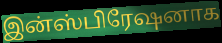
இன்ஸ்பிரேஷனாக